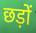
छड़ों